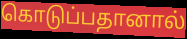
கொடுப்பதானால்